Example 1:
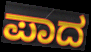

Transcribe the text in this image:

ಪಾದ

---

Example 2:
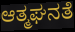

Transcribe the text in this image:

ಆತ್ಮಘನತೆ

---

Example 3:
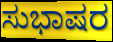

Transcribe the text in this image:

ಸುಭಾಷರ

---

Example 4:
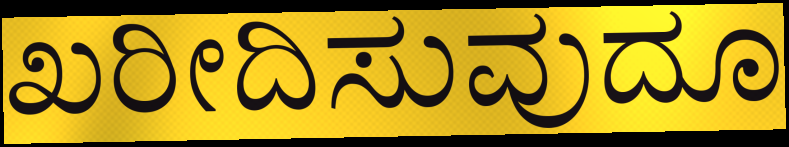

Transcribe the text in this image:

ಖರೀದಿಸುವುದೂ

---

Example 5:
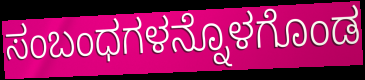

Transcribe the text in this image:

ಸಂಬಂಧಗಳನ್ನೊಳಗೊಂಡ